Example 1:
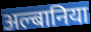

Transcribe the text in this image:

अल्बानिया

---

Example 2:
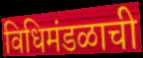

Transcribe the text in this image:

विधिमंडळाची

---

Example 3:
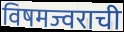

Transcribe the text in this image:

विषमज्वराची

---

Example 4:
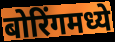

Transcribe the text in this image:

बोरिंगमध्ये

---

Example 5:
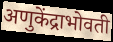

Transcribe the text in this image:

अणुकेंद्राभोवती